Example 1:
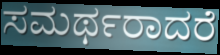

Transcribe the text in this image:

ಸಮರ್ಥರಾದರೆ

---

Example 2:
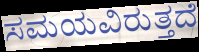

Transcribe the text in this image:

ಸಮಯವಿರುತ್ತದೆ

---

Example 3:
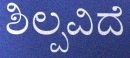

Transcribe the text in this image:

ಶಿಲ್ಪವಿದೆ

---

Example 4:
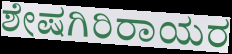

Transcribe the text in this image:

ಶೇಷಗಿರಿರಾಯರ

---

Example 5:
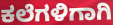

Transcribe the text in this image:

ಕಲೆಗಳಿಗಾಗಿ